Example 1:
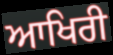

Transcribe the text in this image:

ਆਖਿਰੀ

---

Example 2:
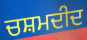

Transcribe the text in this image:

ਚਸ਼ਮਦੀਦ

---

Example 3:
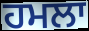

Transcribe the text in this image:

ਹਮਲਾ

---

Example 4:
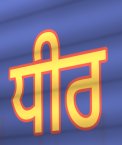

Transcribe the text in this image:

ਧੀਰ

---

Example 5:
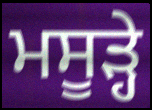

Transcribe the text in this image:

ਮਸੂੜ੍ਹੇ